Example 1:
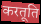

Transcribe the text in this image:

करतूति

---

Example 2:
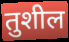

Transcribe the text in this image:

तुशील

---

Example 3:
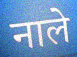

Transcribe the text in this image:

नाले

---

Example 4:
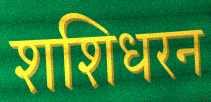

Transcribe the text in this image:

शशिधरन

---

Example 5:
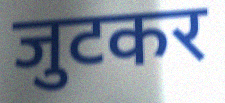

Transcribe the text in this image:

जुटकर